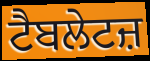
ਟੈਬਲੇਟਜ਼